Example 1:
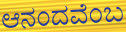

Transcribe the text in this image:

ಆನಂದವೆಂಬ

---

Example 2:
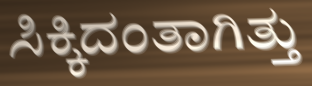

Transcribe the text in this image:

ಸಿಕ್ಕಿದಂತಾಗಿತ್ತು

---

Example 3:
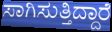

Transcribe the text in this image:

ಸಾಗಿಸುತ್ತಿದ್ದಾರೆ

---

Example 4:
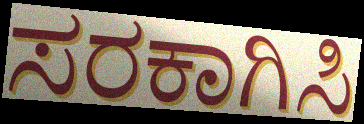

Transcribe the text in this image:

ಸರಕಾಗಿಸಿ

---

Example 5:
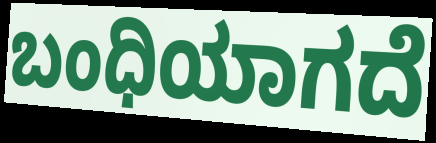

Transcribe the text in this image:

ಬಂಧಿಯಾಗದೆ